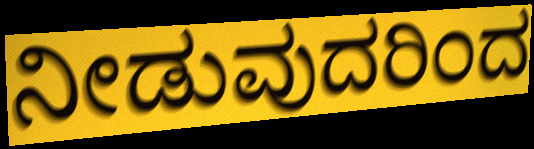
ನೀಡುವುದರಿಂದ